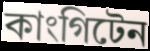
কাংগিটেন